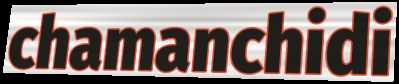
chamanchidi